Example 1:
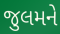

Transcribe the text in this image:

જુલમને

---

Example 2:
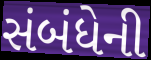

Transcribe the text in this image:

સંબંધેની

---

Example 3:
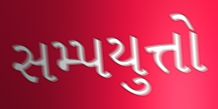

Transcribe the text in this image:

સમ્પયુત્તો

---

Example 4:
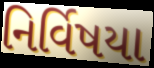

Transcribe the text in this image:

નિર્વિષયા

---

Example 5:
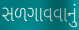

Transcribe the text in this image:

સળગાવવાનું